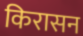
किरासन